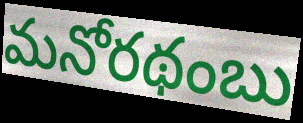
మనోరథంబు